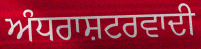
ਅੰਧਰਾਸ਼ਟਰਵਾਦੀ